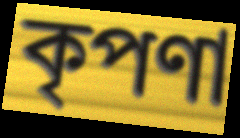
কৃপণা